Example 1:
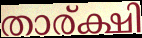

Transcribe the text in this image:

താര്ക്ഷി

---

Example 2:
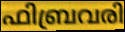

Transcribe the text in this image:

ഫിബ്രവരി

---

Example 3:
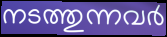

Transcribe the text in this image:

നടത്തുന്നവർ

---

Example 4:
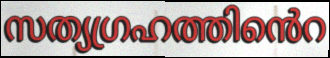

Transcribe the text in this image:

സത്യഗ്രഹത്തിൻെറ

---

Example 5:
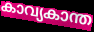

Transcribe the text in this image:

കാവ്യകാന്ത